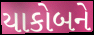
યાકોબને